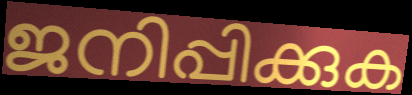
ജനിപ്പിക്കുക